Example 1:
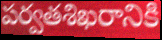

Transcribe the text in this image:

పర్వతశిఖరానికి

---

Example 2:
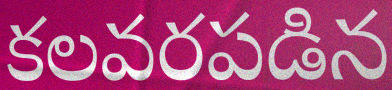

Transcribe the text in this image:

కలవరపడిన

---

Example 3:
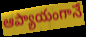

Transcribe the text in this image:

ఆప్యాయంగానే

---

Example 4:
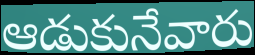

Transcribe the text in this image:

ఆడుకునేవారు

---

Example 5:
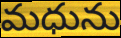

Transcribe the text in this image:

మధును